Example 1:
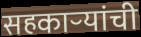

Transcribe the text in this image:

सहकाऱ्यांची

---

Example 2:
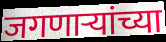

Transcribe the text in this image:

जगणाऱ्यांच्या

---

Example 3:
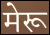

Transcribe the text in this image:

मेरू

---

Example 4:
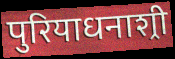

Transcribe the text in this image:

पुरियाधनाश्री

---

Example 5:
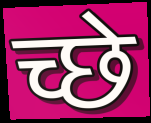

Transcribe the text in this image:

च्छे